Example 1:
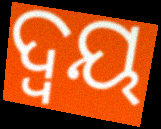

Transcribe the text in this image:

ଦ୍ୱୟ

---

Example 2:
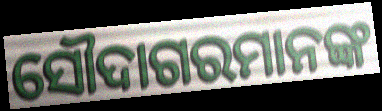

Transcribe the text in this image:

ସୌଦାଗରମାନଙ୍କ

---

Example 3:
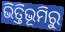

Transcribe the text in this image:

ଭିତ୍ତିଭୂମିରୁ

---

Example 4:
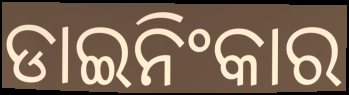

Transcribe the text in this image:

ଡାଇନିଂକାର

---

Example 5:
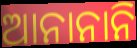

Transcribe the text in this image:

ଆନାନାନି